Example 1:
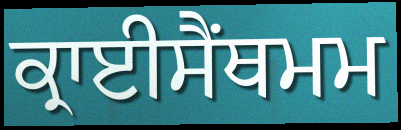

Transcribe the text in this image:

ਕ੍ਰਾਈਸੈਂਥਮਮ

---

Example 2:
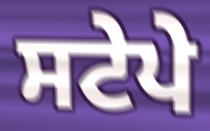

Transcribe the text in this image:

ਸਟੇਪੇ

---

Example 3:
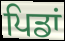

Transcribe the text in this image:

ਪਿਡਾਂ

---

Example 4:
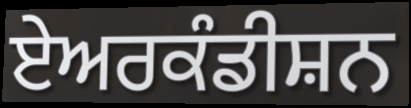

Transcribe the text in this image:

ਏਅਰਕੰਡੀਸ਼ਨ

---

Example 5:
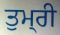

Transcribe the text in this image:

ਤੁਮ੍‍ਰੀ